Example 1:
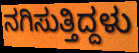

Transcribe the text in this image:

ನಗಿಸುತ್ತಿದ್ದಳು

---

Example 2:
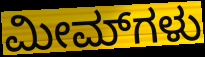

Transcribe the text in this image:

ಮೀಮ್‌ಗಳು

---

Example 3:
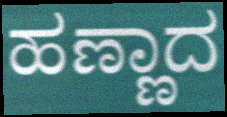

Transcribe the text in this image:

ಹಣ್ಣಾದ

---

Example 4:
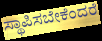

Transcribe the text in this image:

ಸ್ಥಾಪಿಸಬೇಕೆಂದರೆ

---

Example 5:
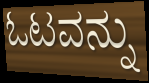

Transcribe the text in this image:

ಓಟವನ್ನು